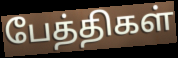
பேத்திகள்